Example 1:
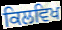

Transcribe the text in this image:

ਕਿਲਵਿਖ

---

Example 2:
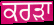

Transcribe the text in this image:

ਕਰੜਾ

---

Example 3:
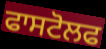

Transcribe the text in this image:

ਫਾਸਟੋਲਫ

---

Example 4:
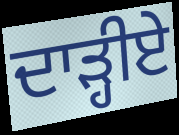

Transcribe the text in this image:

ਦਾੜ੍ਹੀਏ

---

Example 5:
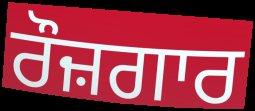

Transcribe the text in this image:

ਰੌਜ਼ਗਾਰ